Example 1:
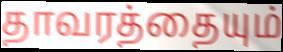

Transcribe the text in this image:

தாவரத்தையும்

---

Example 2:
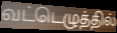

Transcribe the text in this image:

வட்டெழுத்தில்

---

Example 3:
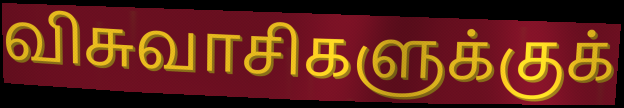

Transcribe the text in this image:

விசுவாசிகளுக்குக்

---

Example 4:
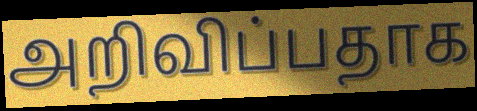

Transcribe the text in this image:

அறிவிப்பதாக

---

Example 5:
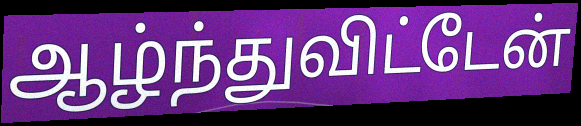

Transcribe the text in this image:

ஆழ்ந்துவிட்டேன்